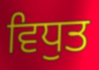
ਵਿਧੁਤ